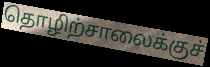
தொழிற்சாலைக்குச்